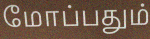
மோப்பதும்